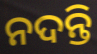
ନଦନ୍ତି